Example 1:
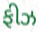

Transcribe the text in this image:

ફીઝ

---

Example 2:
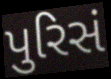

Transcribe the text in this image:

પુરિસં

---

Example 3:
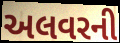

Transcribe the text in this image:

અલવરની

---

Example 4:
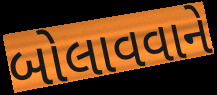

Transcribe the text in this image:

બોલાવવાને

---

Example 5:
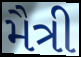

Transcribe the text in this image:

મૈત્રી